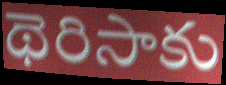
థెరిసాకు